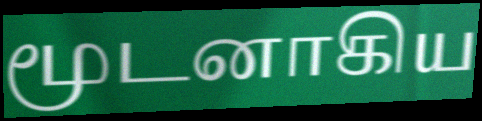
மூடனாகிய